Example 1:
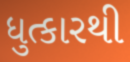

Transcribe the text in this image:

ધુત્કારથી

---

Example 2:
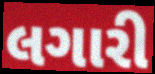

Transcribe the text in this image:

લગારી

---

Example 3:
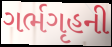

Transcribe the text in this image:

ગર્ભગૃહની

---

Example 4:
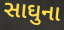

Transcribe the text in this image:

સાઘુના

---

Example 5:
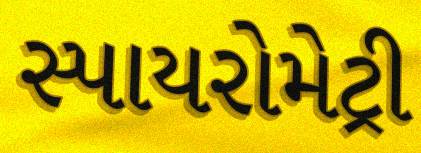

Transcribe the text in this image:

સ્પાયરોમેટ્રી